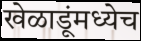
खेळाडूंमध्येच